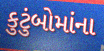
કુટુંબોમાંના